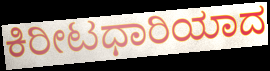
ಕಿರೀಟಧಾರಿಯಾದ